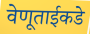
वेणूताईकडे